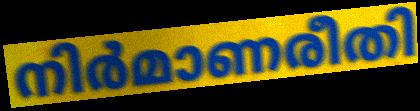
നിർമാണരീതി